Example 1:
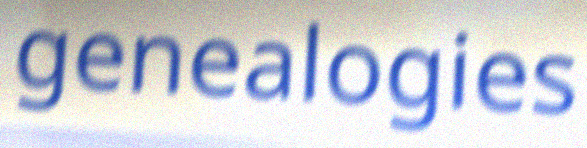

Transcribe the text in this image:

genealogies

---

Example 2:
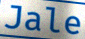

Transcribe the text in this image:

Jale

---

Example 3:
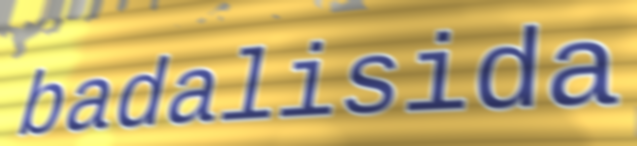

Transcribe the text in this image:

badalisida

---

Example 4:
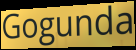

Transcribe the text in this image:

Gogunda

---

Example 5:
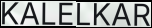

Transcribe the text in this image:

KALELKAR